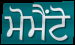
ਮੋਮੈਂਟੋ